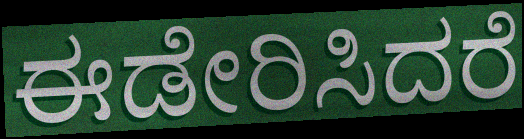
ಈಡೇರಿಸಿದರೆ